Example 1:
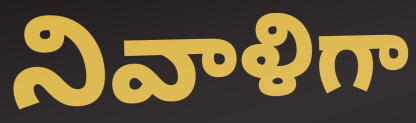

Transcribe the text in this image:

నివాళిగా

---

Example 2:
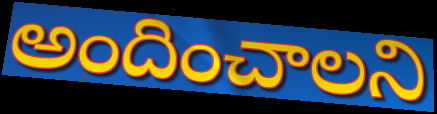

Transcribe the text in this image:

అందించాలని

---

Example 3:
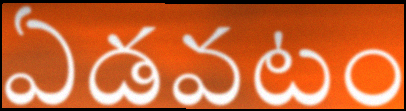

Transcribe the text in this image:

ఏడవటం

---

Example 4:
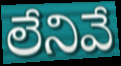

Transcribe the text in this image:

లేనివే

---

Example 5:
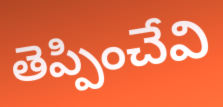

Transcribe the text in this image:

తెప్పించేవి